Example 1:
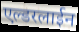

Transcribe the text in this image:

एल्डरलाईन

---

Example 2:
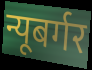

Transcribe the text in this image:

न्यूबर्गर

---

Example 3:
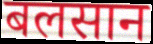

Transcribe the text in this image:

बलसान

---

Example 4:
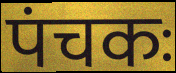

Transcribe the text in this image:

पंचकः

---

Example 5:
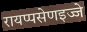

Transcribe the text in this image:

रायप्पसेणइज्जे